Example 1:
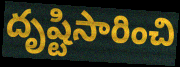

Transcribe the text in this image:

దృష్టిసారించి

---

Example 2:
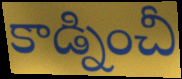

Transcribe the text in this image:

కాడ్నించీ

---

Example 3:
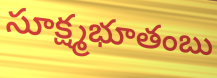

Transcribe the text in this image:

సూక్ష్మభూతంబు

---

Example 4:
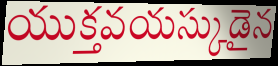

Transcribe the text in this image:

యుక్తవయస్కుడైన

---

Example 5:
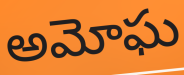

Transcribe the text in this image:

అమోఘ